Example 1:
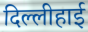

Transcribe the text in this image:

दिल्लीहाई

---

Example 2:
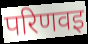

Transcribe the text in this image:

परिणवइ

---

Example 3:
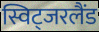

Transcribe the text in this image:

स्विट्जरलैंड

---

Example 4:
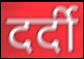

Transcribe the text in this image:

दर्दी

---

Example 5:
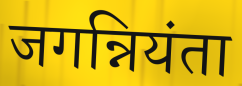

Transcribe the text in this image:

जगन्नियंता